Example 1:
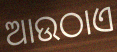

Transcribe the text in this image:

ଆଉଠାଏ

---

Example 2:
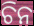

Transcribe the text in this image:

ଚିନ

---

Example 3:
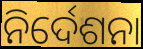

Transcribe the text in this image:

ନିର୍ଦେଶନା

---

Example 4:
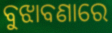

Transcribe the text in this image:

ବୁଝାବଣାରେ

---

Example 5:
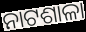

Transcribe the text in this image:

ନାଟଶାଳା